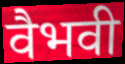
वैभवी